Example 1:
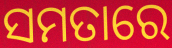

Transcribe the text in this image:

ସମତାରେ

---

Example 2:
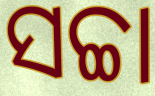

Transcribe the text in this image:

ସଚ୍ଚା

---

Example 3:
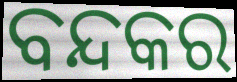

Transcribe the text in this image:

ବନ୍ଦକର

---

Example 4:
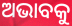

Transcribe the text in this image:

ଅଭାବକୁ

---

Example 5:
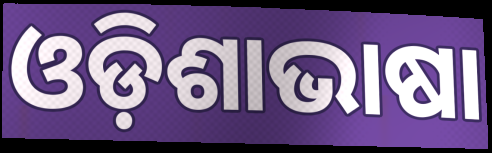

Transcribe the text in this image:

ଓଡ଼ିଶାଭାଷା